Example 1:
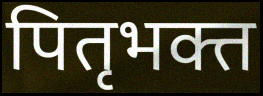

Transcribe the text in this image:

पितृभक्त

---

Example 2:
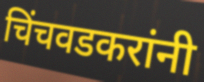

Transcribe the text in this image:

चिंचवडकरांनी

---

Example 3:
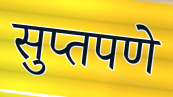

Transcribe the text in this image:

सुप्तपणे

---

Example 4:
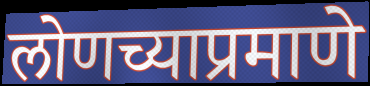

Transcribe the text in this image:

लोणच्याप्रमाणे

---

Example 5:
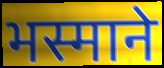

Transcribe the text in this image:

भस्माने